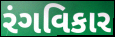
રંગવિકાર